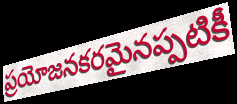
ప్రయోజనకరమైనప్పటికీ